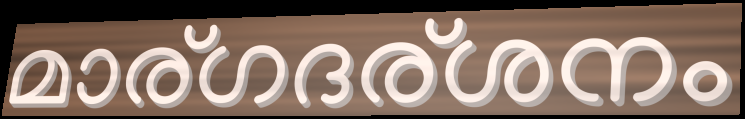
മാര്ഗദര്ശനം